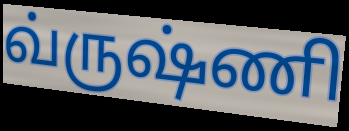
வ்ருஷ்ணி